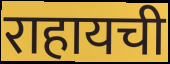
राहायची